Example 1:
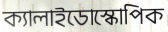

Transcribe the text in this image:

ক্যালাইডোস্কোপিক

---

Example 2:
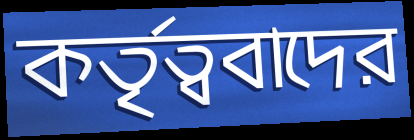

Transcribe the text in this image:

কর্তৃত্ববাদের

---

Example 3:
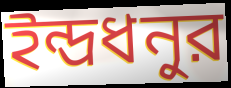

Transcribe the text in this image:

ইন্দ্রধনুর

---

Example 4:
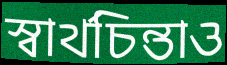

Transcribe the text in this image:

স্বার্থচিন্তাও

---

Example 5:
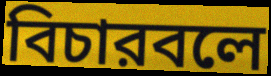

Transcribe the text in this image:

বিচারবলে